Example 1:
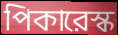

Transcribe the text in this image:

পিকারেস্ক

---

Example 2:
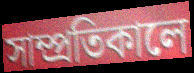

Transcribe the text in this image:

সাম্প্রতিকালে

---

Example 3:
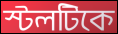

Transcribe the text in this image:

স্টলটিকে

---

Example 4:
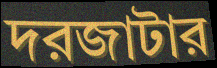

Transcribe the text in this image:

দরজাটার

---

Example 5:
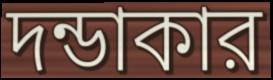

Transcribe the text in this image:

দন্ডাকার